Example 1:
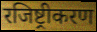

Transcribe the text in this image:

रजिष्ट्रीकरण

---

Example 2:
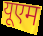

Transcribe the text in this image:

यूएम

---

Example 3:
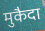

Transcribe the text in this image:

मुकैदा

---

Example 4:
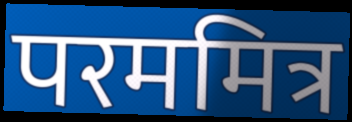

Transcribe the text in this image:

परममित्र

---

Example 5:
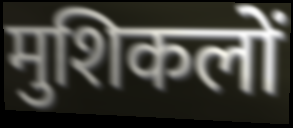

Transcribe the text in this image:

मुशिकलों